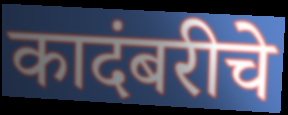
कादंबरीचे